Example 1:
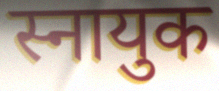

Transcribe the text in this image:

स्नायुक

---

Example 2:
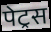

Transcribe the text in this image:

पेट्रस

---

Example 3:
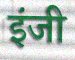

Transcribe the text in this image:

इंजी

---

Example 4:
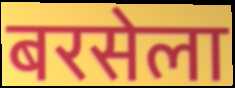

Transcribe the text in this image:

बरसेला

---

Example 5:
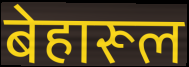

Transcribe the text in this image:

बेहारूल